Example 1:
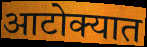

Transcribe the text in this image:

आटोक्‍यात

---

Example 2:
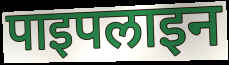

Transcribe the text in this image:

पाइपलाइन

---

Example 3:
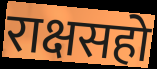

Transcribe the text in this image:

राक्षसहो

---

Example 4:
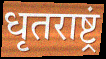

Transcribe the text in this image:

धृतराष्ट्रं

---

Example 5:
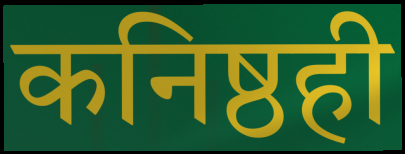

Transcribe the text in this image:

कनिष्ठही